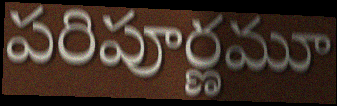
పరిపూర్ణమూ